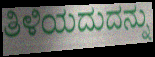
ತಿಳಿಯದುದನ್ನು